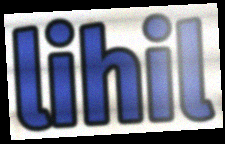
lihil